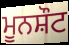
ਮੂਨਸ਼ੌਟ